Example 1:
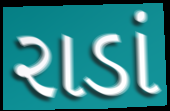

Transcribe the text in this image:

રાડાં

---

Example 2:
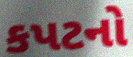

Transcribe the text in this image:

કપટનો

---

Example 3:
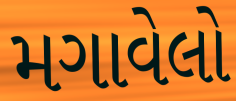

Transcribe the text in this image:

મગાવેલો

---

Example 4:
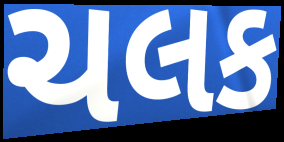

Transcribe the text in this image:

ચલક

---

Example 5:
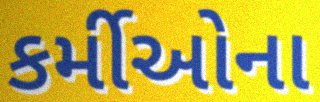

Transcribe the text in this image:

કર્મીઓના